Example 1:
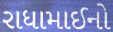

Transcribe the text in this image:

રાધામાઈનો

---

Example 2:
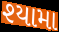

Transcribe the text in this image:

શ્યામા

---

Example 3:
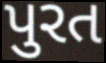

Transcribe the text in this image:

પુરત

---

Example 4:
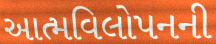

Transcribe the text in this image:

આત્મવિલોપનની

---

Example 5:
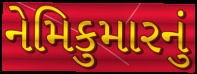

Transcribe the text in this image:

નેમિકુમારનું